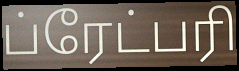
ப்ரேட்பரி